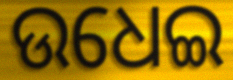
ଉଧେଇ